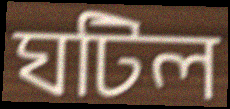
ঘটিল